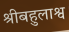
श्रीबहुलाश्व